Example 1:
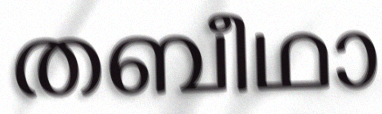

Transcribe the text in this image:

തബീഥാ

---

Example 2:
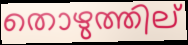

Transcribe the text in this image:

തൊഴുത്തില്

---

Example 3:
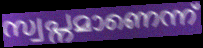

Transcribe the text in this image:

സ്വപ്നമാണെന്ന്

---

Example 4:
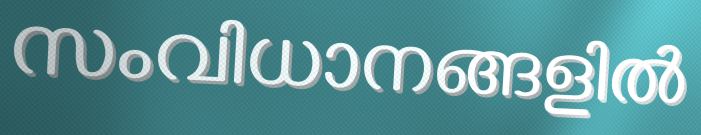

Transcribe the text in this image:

സംവിധാനങ്ങളിൽ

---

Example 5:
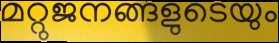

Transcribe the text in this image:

മറ്റുജനങ്ങളുടെയും